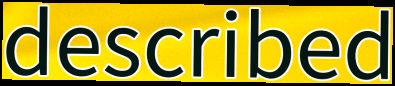
described